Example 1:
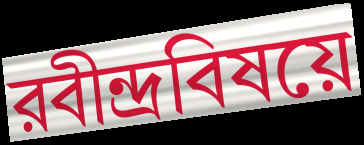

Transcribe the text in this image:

রবীন্দ্রবিষয়ে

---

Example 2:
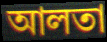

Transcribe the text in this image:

আলতা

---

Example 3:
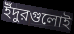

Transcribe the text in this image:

ইঁদুরগুলোই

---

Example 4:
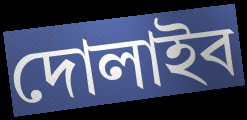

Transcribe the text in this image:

দোলাইব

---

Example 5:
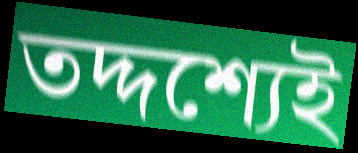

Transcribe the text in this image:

তদ্দশ্যেই